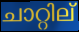
ചാറ്റില്